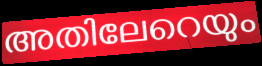
അതിലേറെയും